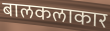
बालकलाकार